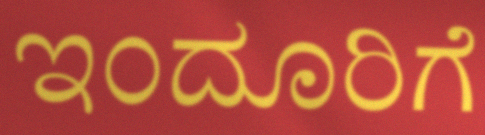
ಇಂದೂರಿಗೆ